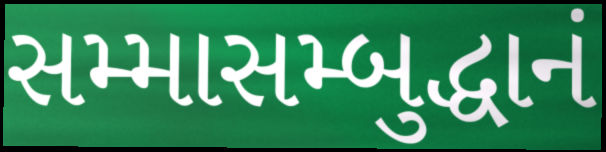
સમ્માસમ્બુદ્ધાનં